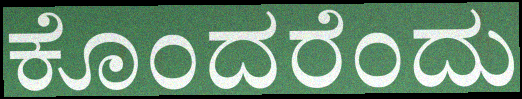
ಕೊಂದರೆಂದು